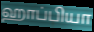
ஹாப்பியா